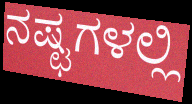
ನಷ್ಟಗಳಲ್ಲಿ